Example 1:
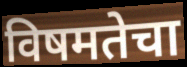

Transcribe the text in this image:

विषमतेचा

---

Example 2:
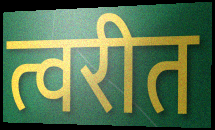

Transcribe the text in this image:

त्वरीत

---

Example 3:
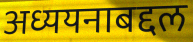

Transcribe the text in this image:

अध्ययनाबद्दल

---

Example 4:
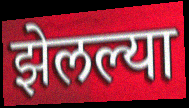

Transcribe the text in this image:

झेलल्या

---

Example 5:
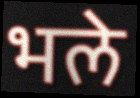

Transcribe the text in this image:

भले